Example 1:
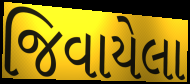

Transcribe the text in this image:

જિવાયેલા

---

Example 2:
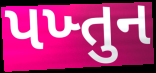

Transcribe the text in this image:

પખ્તુન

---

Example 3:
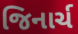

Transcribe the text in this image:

જિનાર્ચ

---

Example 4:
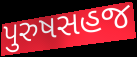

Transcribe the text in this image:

પુરુષસહજ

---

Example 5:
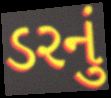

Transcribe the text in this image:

ડરનું